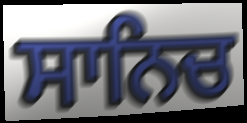
ਸਾਨਿਚ